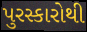
પુરસ્કારોથી